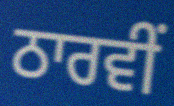
ਠਾਰਵੀਂ